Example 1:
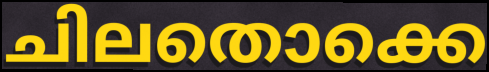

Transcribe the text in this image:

ചിലതൊക്കെ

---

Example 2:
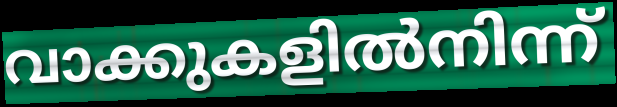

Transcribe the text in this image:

വാക്കുകളിൽനിന്ന്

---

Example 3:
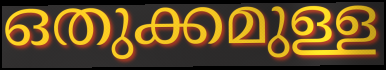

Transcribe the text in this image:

ഒതുക്കമുള്ള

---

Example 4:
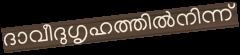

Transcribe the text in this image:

ദാവീദുഗൃഹത്തിൽനിന്ന്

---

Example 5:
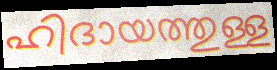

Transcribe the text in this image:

ഹിദായത്തുള്ള